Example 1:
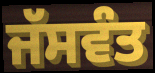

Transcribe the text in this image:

ਜੱਸਵੰਤ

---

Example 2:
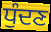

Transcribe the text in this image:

ਧੁੰਦਣ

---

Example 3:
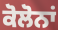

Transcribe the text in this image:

ਕੋਲੋਨਾਂ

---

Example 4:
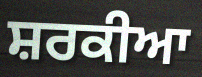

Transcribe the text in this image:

ਸ਼ਰਕੀਆ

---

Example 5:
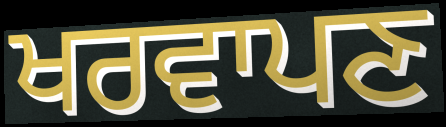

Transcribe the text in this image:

ਖਰਵਾਪਣ